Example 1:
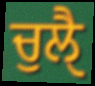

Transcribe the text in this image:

ਚੁਲੈੑ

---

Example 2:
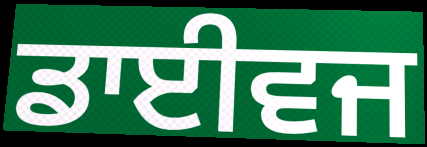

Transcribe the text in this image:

ਡਾਈਵਜ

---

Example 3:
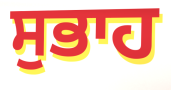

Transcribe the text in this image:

ਸੁਭਾਹ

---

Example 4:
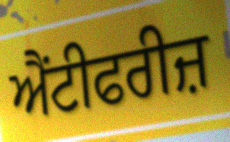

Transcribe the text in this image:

ਐਂਟੀਫਰੀਜ਼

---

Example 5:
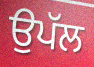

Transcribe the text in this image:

ਉਪੱਲ